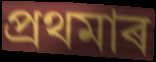
প্ৰথমাৰ